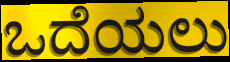
ಒದೆಯಲು